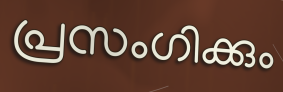
പ്രസംഗിക്കും